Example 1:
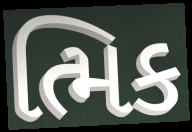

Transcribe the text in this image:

ત્મિક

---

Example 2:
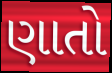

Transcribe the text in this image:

ણાતો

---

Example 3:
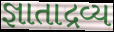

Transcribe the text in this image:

જ્ઞાતાદ્રવ્ય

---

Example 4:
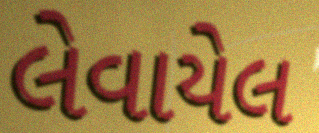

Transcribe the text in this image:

લેવાયેલ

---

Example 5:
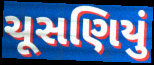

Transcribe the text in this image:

ચૂસણિયું